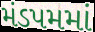
મંડપમમાં